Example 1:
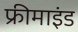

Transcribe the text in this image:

फ्रीमाइंड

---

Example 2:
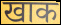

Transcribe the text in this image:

खाक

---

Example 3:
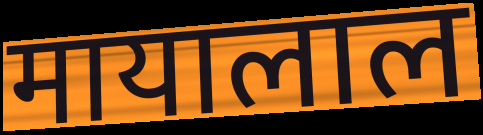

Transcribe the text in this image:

मायालाल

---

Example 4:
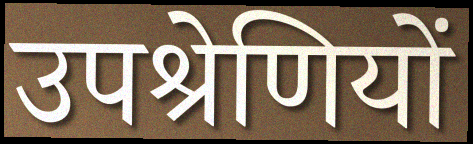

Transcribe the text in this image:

उपश्रेणियों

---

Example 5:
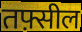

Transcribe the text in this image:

तफ़्सील